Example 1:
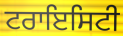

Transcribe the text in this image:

ਟਰਾਇਸਿਟੀ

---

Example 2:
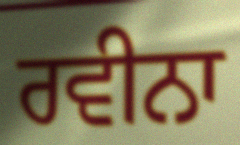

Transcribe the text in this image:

ਰਵੀਨਾ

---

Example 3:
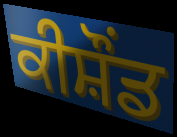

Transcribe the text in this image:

ਕੀਸ਼ੌਂਡ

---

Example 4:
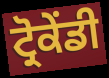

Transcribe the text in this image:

ਟ੍ਰੋਕੇਂਡੀ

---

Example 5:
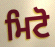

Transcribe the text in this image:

ਮਿਟੋ